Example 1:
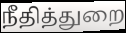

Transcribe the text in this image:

நீதித்துறை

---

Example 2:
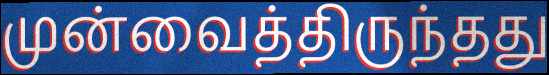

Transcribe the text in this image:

முன்வைத்திருந்தது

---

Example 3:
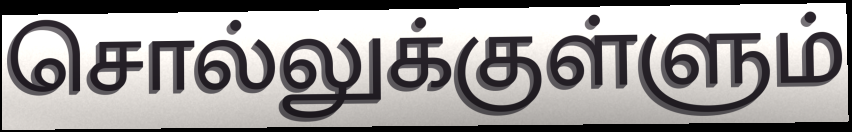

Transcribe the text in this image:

சொல்லுக்குள்ளும்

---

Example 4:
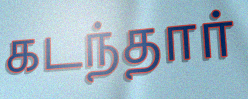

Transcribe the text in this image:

கடந்தார்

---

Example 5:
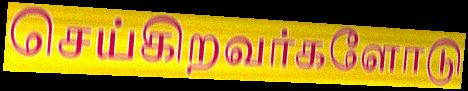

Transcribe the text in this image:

செய்கிறவர்களோடு